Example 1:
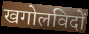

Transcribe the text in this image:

खगोलविदों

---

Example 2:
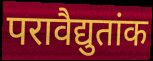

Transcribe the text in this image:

परावैद्युतांक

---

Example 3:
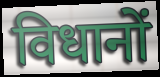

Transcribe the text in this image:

विधानों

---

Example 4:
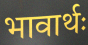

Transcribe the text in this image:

भावार्थः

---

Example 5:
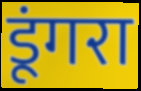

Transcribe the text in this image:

डूंगरा